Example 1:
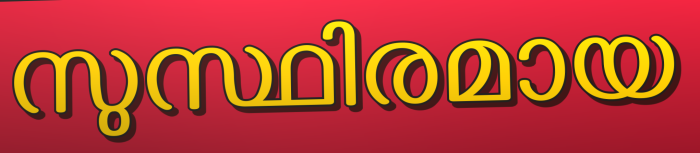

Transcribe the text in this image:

സുസ്ഥിരമായ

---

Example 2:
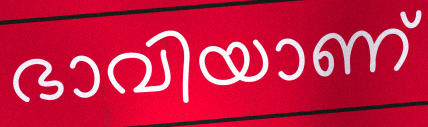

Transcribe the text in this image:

ഭാവിയാണ്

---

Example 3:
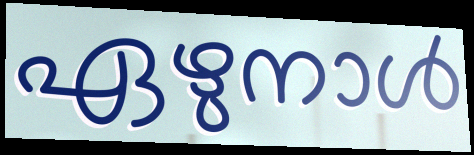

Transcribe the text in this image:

ഏഴുനാൾ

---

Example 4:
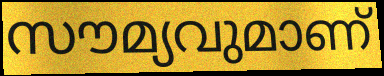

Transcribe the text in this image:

സൗമ്യവുമാണ്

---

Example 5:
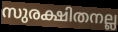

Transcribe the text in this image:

സുരക്ഷിതനല്ല